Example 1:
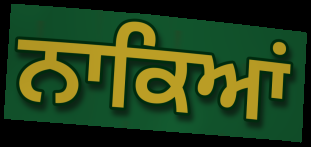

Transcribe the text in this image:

ਨਾਕਿਆਂ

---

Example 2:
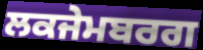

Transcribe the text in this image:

ਲਕਜੇਮਬਰਗ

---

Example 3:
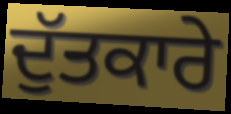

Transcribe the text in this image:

ਦੁੱਤਕਾਰੇ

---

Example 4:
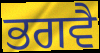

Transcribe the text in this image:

ਭਗਵੈ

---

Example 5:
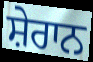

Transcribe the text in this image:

ਸ਼ੇਰਾਨ